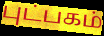
புட்பகம்